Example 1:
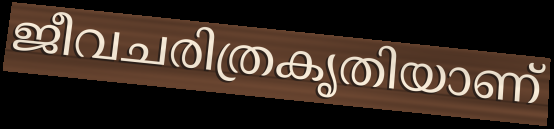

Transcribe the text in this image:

ജീവചരിത്രകൃതിയാണ്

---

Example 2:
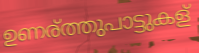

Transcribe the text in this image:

ഉണര്ത്തുപാട്ടുകള്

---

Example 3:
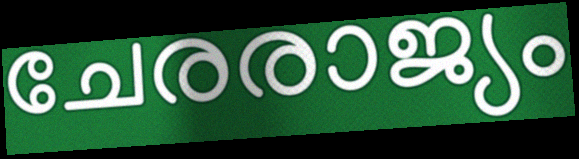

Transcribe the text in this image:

ചേരരാജ്യം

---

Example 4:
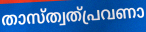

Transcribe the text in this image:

താസ്ത്വത്പ്രവണാ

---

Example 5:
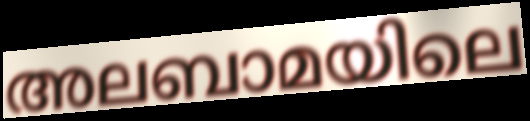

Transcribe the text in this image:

അലബാമയിലെ